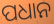
ପଧାନ